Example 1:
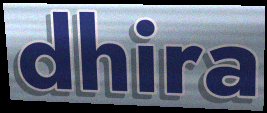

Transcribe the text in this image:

dhira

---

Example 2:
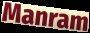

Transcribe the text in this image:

Manram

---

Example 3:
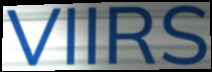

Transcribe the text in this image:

VIIRS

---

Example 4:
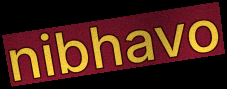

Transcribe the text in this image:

nibhavo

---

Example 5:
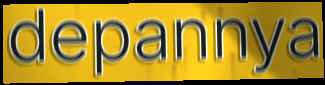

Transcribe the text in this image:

depannya